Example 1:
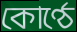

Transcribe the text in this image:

কোণ্ঠে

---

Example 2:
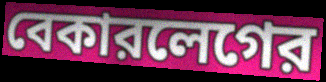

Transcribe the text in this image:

বেকারলেগের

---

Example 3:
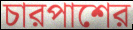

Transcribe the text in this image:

চারপাশের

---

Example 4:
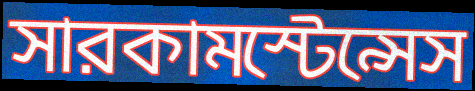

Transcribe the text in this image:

সারকামস্টেন্সেস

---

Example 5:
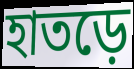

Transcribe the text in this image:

হাতড়ে